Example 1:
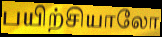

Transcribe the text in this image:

பயிற்சியாலோ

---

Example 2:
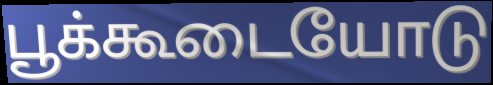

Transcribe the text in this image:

பூக்கூடையோடு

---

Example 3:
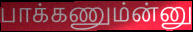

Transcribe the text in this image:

பாக்கணும்ன்னு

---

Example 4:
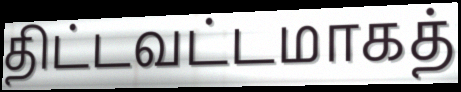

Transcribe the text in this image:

திட்டவட்டமாகத்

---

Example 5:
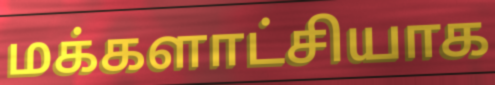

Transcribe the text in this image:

மக்களாட்சியாக